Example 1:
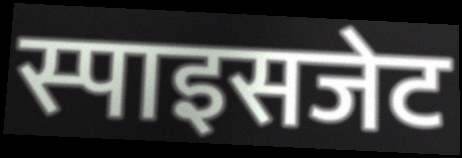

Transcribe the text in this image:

स्पाइसजेट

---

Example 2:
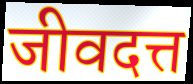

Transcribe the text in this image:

जीवदत्त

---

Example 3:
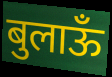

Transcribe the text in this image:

बुलाऊँ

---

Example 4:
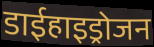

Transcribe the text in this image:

डाईहाइड्रोजन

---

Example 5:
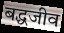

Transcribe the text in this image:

बद्धजीव